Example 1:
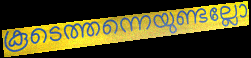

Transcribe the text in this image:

കൂടെത്തന്നെയുണ്ടല്ലോ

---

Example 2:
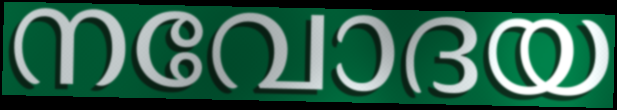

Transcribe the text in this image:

നവോദയ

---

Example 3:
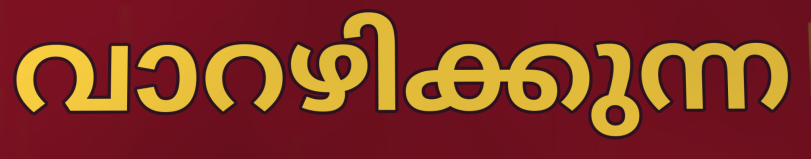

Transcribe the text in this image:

വാറഴിക്കുന്ന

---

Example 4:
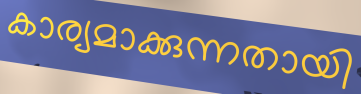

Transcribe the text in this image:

കാര്യമാക്കുന്നതായി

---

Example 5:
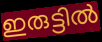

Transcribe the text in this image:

ഇരുട്ടിൽ